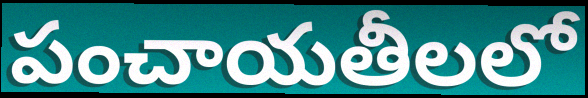
పంచాయతీలలో